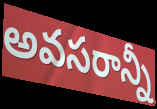
అవసరాన్నీ